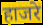
हाजरे